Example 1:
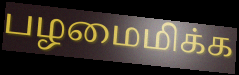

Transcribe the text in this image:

பழமைமிக்க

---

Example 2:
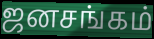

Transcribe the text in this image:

ஜனசங்கம்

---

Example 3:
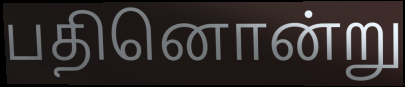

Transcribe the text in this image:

பதினொன்று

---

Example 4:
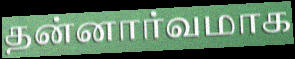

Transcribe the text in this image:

தன்னார்வமாக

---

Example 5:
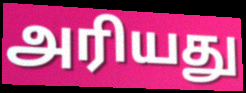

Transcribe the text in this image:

அரியது